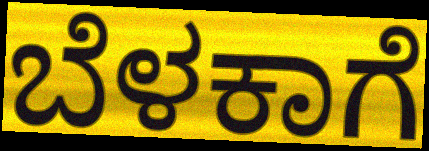
ಬೆಳಕಾಗೆ